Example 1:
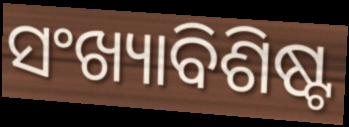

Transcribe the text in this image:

ସଂଖ୍ୟାବିଶିଷ୍ଟ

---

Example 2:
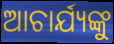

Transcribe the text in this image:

ଆଚାର୍ଯ୍ୟଙ୍କୁ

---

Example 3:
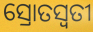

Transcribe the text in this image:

ସ୍ରୋତସ୍ଵତୀ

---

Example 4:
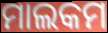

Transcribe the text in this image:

ମାଲକମ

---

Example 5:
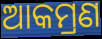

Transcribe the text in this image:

ଆକମ୍ରଣ